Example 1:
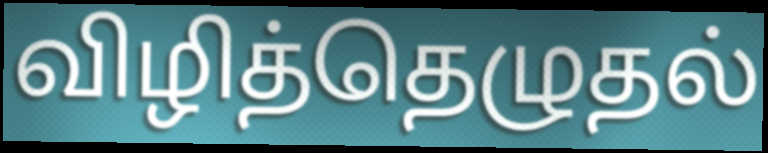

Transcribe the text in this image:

விழித்தெழுதல்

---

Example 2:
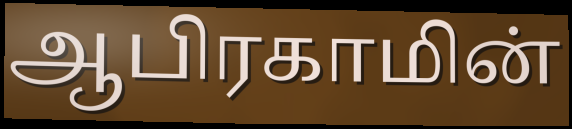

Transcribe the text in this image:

ஆபிரகாமின்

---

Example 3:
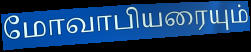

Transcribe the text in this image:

மோவாபியரையும்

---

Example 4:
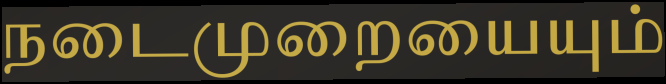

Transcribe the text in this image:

நடைமுறையையும்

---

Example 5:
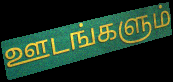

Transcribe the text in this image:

ஊடங்களும்